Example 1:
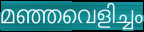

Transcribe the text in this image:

മഞ്ഞവെളിച്ചം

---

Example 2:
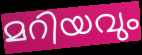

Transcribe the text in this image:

മറിയവും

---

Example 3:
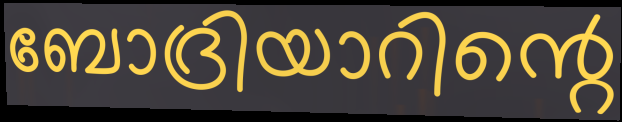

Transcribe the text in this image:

ബോദ്രിയാറിന്റെ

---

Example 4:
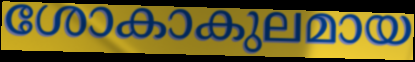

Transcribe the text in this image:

ശോകാകുലമായ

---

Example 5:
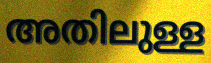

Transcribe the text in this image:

അതിലുള്ള